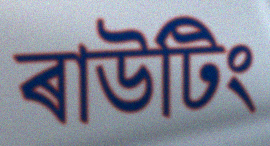
ৰাউটিং